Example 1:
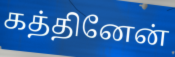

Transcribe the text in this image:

கத்தினேன்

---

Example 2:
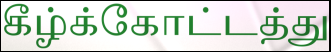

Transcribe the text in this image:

கீழ்க்கோட்டத்து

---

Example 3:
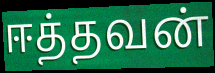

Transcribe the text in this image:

ஈத்தவன்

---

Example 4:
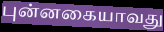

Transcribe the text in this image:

புன்னகையாவது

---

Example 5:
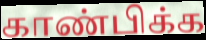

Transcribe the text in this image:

காண்பிக்க